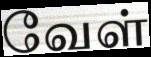
வேள்